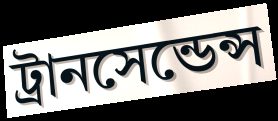
ট্রানসেন্ডেন্স